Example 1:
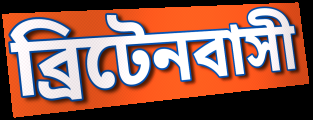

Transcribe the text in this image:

ব্রিটেনবাসী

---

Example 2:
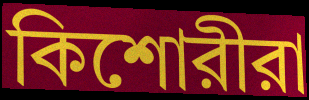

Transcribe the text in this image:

কিশোরীরা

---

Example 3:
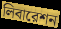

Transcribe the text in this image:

লিবারেশন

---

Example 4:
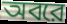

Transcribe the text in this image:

অবরে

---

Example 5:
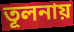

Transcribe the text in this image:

তূলনায়